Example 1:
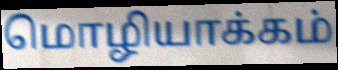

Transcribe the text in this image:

மொழியாக்கம்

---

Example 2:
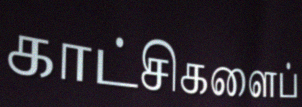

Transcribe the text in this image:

காட்சிகளைப்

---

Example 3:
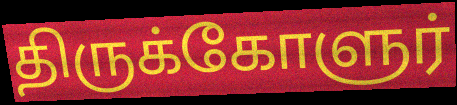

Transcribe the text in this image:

திருக்கோளுர்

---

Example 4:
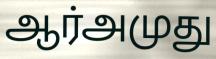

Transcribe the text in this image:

ஆர்அமுது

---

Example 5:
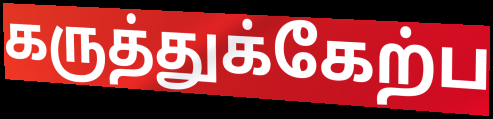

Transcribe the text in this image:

கருத்துக்கேற்ப